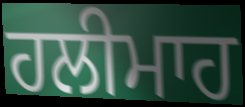
ਹਲੀਮਾਹ